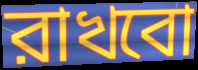
রাখবো